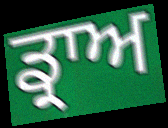
ਡ੍ਰਾਅ